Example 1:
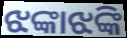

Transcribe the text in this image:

ଝଙ୍କାଝଙ୍କି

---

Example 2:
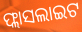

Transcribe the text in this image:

ଫ୍ଲାସଲାଇଟ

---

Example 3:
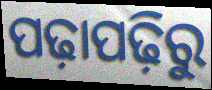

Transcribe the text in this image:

ପଢ଼ାପଢ଼ିରୁ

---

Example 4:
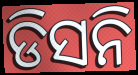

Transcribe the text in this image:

ଡିସନି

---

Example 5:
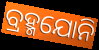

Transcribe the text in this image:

ବ୍ରହ୍ମଯୋନି